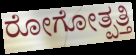
ರೋಗೋತ್ಪತ್ತಿ